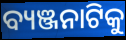
ବ୍ୟଞ୍ଜନାଟିକୁ